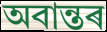
অবান্তৰ